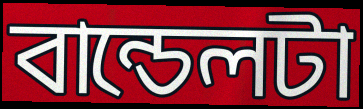
বান্ডেলটা